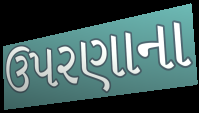
ઉપરણાના